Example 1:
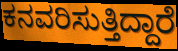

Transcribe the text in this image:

ಕನವರಿಸುತ್ತಿದ್ದಾರೆ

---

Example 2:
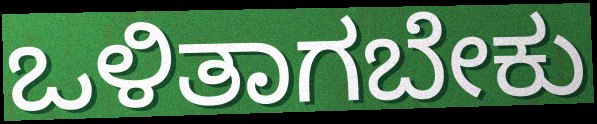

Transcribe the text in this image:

ಒಳಿತಾಗಬೇಕು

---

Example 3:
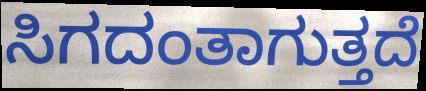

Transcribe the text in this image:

ಸಿಗದಂತಾಗುತ್ತದೆ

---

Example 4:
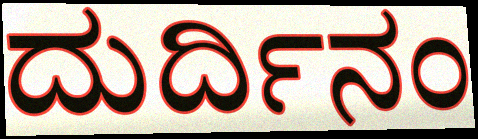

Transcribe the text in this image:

ದುರ್ದಿನಂ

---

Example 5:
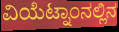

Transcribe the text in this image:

ವಿಯೆಟ್ನಾಂನಲ್ಲಿನ